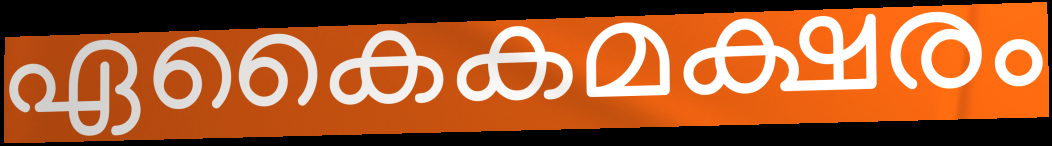
ഏകൈകമക്ഷരം